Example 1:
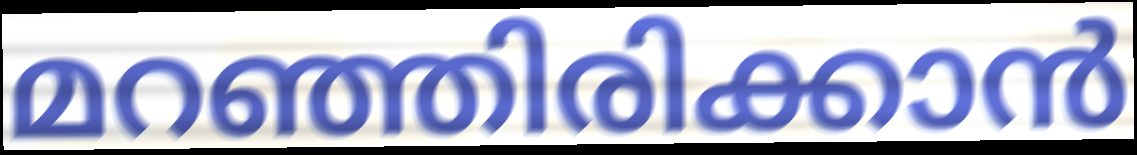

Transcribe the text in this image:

മറഞ്ഞിരിക്കാൻ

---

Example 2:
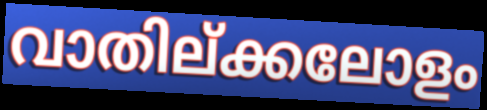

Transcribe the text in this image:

വാതില്ക്കലോളം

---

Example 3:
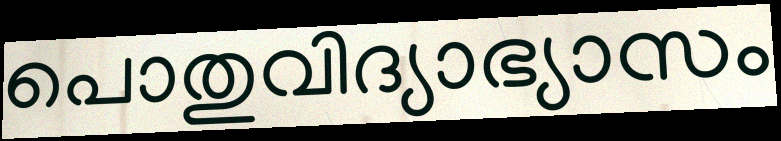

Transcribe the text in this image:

പൊതുവിദ്യാഭ്യാസം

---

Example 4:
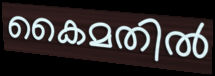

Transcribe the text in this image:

കൈമതിൽ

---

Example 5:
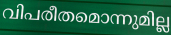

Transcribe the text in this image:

വിപരീതമൊന്നുമില്ല